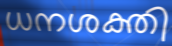
ധനശക്തി